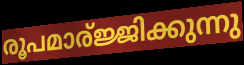
രൂപമാര്ജ്ജിക്കുന്നു